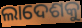
ଲାଦେଶକୁ